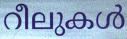
റീലുകൾ